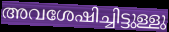
അവശേഷിച്ചിട്ടുള്ളു